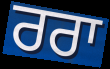
ਰਰਾ